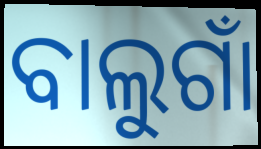
ବାଲୁଗାଁ